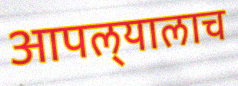
आपल्यालाच